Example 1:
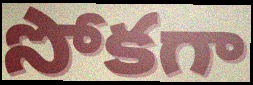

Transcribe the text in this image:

సోకగా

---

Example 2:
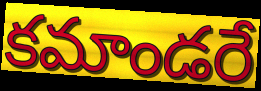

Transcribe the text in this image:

కమాండరే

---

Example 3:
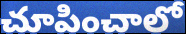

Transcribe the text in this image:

చూపించాలో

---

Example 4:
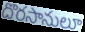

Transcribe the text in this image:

దొరసానులూ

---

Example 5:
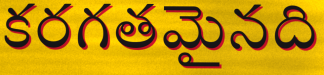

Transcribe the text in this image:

కరగతమైనది